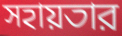
সহায়তার